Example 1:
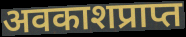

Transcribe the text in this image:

अवकाशप्राप्त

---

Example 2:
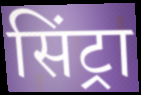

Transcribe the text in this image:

सिंट्रा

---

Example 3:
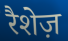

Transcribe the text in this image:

रैशेज़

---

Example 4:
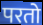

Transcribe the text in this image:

परतो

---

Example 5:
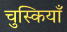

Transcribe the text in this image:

चुस्कियाँ